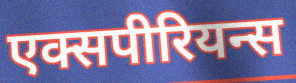
एक्सपीरियन्स